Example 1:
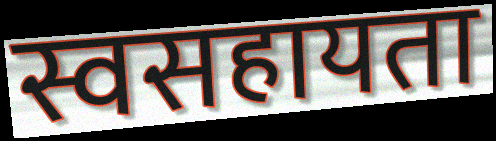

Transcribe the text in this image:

स्‍वसहायता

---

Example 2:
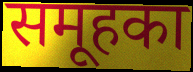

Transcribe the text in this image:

समूहका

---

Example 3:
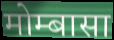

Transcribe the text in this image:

मोम्बासा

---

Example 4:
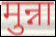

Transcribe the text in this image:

मुन्ना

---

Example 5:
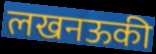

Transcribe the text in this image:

लखनऊकी